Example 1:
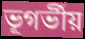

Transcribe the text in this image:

ভূগর্ভীয়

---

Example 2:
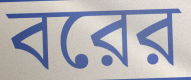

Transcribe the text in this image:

বরের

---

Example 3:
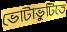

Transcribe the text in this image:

ভোটাভুটিতে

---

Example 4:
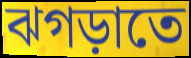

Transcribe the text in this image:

ঝগড়াতে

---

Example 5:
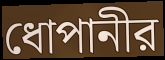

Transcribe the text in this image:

ধোপানীর